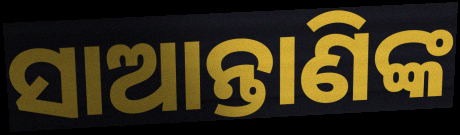
ସାଆନ୍ତାଣିଙ୍କ